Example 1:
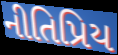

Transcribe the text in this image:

નીતિપ્રિય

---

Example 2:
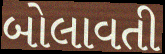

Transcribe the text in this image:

બોલાવતી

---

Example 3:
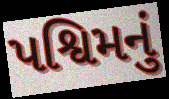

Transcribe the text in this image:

પશ્વિમનું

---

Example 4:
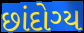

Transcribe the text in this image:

છાંદોગ્ય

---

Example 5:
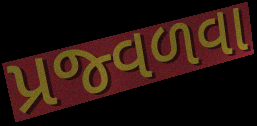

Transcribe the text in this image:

પ્રજ્વળવા